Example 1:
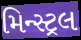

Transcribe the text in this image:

મિન્સ્ટ્રલ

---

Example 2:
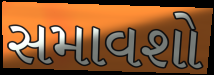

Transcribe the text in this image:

સમાવશો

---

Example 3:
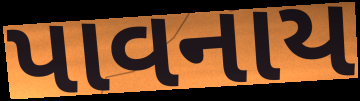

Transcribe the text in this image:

પાવનાય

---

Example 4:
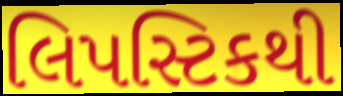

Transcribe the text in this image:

લિપસ્ટિકથી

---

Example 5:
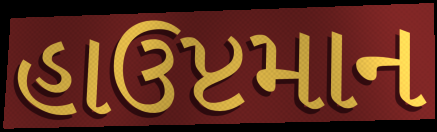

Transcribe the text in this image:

હાઉપ્ટમાન